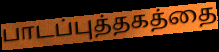
பாடப்புத்தகத்தை